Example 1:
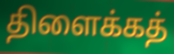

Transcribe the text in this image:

திளைக்கத்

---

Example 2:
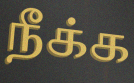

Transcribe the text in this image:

நீக்க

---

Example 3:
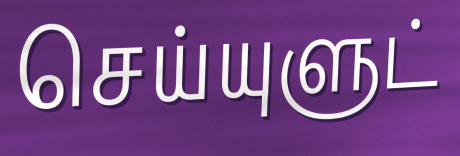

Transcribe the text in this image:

செய்யுளுட்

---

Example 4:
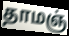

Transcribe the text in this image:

தாமஞ்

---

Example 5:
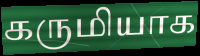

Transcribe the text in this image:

கருமியாக